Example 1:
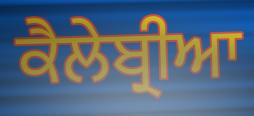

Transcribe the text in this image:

ਕੈਲੇਬ੍ਰੀਆ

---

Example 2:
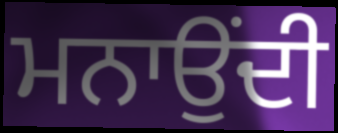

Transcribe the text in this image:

ਮਨਾਉਂਦੀ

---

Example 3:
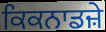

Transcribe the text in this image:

ਕਿਕਨਾਡਜ਼ੇ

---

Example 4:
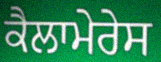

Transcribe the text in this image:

ਕੈਲਾਮੇਰੇਸ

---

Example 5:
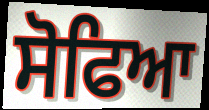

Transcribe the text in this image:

ਸੋਫਿਆ